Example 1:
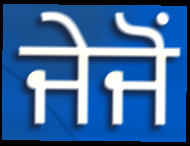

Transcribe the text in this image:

ਜੇਜੋਂ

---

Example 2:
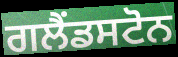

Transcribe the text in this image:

ਗਲੈਂਡਸਟੋਨ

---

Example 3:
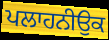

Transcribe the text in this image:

ਪਲਾਹਨੀਉਕ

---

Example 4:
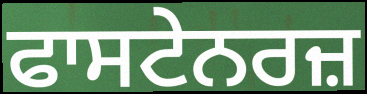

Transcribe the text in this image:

ਫਾਸਟੇਨਰਜ਼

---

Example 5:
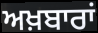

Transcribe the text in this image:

ਅਖ਼ਬਾਰਾਂ